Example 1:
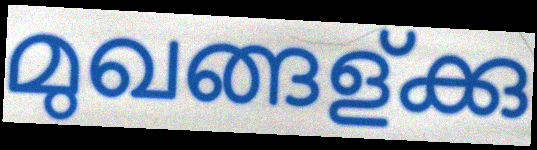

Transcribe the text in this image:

മുഖങ്ങള്ക്കു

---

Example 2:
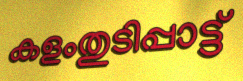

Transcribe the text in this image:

കളംതുടിപ്പാട്ട്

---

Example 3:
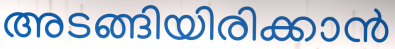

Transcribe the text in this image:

അടങ്ങിയിരിക്കാൻ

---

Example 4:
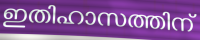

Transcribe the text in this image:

ഇതിഹാസത്തിന്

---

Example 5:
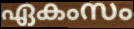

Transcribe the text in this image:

ഏകംസം